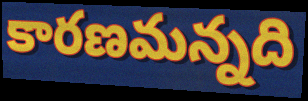
కారణమన్నది